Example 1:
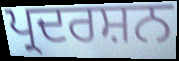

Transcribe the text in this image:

ਪ੍ਰਦਰਸ਼ਨ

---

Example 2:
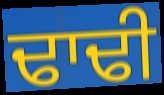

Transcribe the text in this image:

ਢਾਢੀ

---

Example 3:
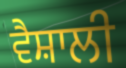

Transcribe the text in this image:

ਵੈਸ਼ਾਲੀ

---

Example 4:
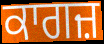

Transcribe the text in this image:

ਕਾਗਜ਼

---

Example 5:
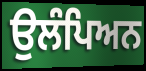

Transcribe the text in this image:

ਉਲੰਪਿਅਨ